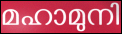
മഹാമുനി